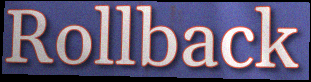
Rollback